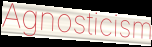
Agnosticism